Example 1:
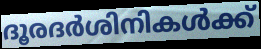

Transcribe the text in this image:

ദൂരദർശിനികൾക്ക്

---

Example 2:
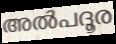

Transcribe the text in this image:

അൽപദൂര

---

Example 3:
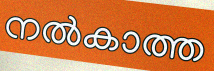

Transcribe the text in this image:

നൽകാത്ത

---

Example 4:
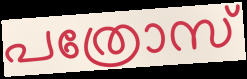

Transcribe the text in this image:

പത്രോസ്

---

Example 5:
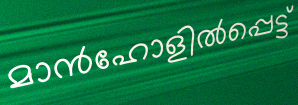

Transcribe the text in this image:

മാൻഹോളിൽപ്പെട്ട്